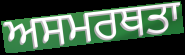
ਅਸਮਰਥਤਾ